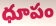
ధూపం